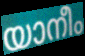
യാനീം